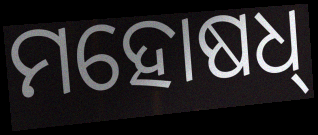
ମହୋଷଧ୍